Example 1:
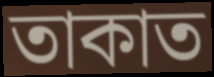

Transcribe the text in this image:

তাকাত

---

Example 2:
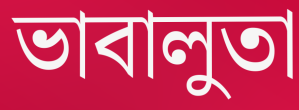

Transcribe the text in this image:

ভাবালুতা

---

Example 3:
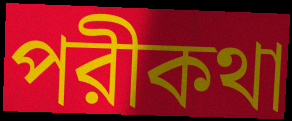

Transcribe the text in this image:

পরীকথা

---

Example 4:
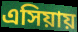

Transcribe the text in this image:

এসিয়ায়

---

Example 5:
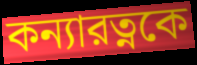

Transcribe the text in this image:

কন্যারত্নকে